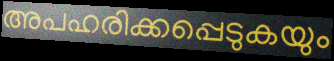
അപഹരിക്കപ്പെടുകയും